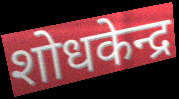
शोधकेन्द्र